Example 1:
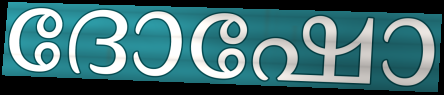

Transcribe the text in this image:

ദോഷോ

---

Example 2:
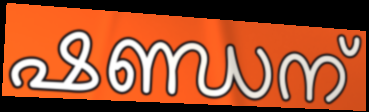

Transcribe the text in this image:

ഷണ്ഡന്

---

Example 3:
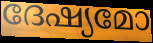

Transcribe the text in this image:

ദേഷ്യമോ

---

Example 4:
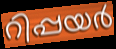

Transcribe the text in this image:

റിപ്പയർ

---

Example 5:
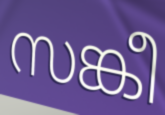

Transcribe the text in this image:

സങ്കീ